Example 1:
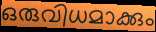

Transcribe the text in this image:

ഒരുവിധമാക്കും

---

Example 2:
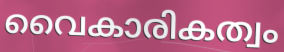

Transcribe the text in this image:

വൈകാരികത്വം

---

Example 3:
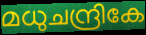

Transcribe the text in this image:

മധുചന്ദ്രികേ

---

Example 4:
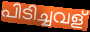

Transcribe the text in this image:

പിടിച്ചവള്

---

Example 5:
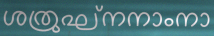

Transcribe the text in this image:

ശത്രുഘ്നനാംനാ